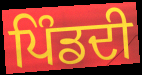
ਪਿੰਡਦੀ